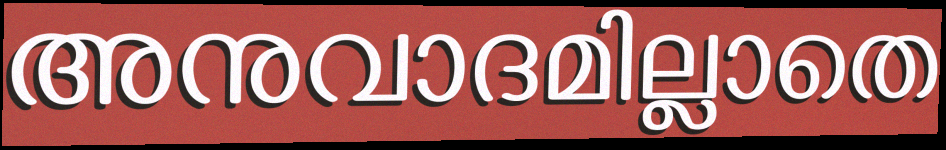
അനുവാദമില്ലാതെ